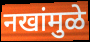
नखांमुळे